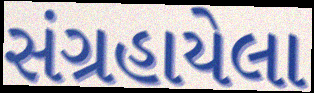
સંગ્રહાયેલા